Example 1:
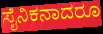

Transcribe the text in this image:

ಸೈನಿಕನಾದರೂ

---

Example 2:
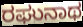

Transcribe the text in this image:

ರಘುನಾಥ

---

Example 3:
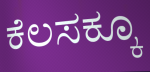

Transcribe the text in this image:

ಕೆಲಸಕ್ಕೂ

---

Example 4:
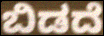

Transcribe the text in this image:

ಬಿಡದೆ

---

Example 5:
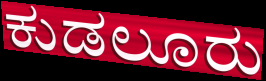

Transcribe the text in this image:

ಕುಡಲೂರು